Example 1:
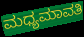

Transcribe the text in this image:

ಮಧ್ಯಮಾವತಿ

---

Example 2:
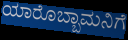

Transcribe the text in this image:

ಯಾರೊಬ್ಬಾಮನಿಗೆ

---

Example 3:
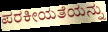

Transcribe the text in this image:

ಪರಕೀಯತೆಯನ್ನು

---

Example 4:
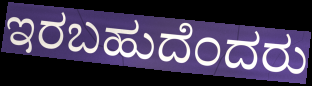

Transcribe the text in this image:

ಇರಬಹುದೆಂದರು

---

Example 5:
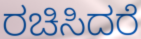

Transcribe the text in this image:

ರಚಿಸಿದರೆ